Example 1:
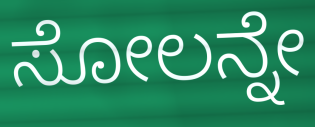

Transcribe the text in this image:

ಸೋಲನ್ನೇ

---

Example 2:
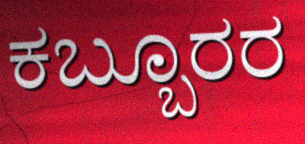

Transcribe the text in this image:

ಕಬ್ಬೂರರ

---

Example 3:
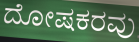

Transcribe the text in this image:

ದೋಷಕರವು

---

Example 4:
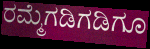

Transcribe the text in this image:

ರಮ್ಮೆಗಡಿಗಡಿಗೂ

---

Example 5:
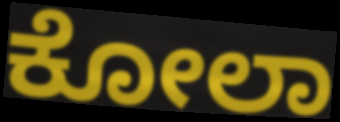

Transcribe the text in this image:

ಕೋಲಾ